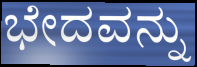
ಭೇದವನ್ನು